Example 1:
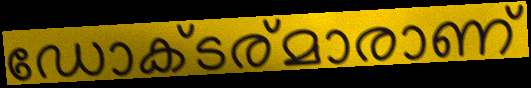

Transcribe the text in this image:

ഡോക്ടര്മാരാണ്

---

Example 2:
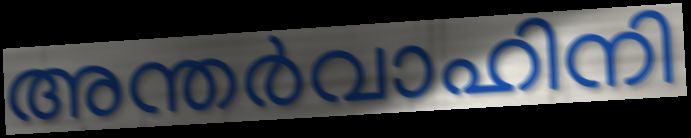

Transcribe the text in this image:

അന്തർവാഹിനി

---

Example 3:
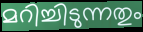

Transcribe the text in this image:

മറിച്ചിടുന്നതും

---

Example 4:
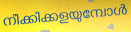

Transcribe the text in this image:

നീക്കിക്കളയുമ്പോൾ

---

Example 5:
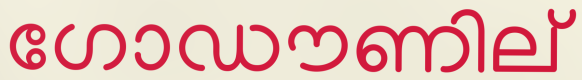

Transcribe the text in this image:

ഗോഡൗണില്